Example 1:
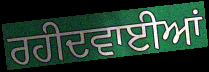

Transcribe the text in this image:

ਰਹੀਦਵਾਈਆਂ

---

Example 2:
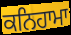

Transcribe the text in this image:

ਕਨਿਹਾਮਾ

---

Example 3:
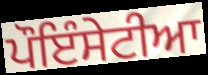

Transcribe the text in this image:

ਪੌਇੰਸੇਟੀਆ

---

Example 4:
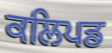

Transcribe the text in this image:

ਕਲਿਪਡ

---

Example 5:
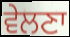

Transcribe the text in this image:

ਵੇਲਣਾ